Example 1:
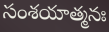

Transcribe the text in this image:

సంశయాత్మనః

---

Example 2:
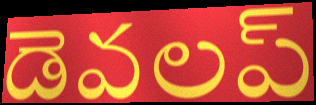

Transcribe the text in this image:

డెవలప్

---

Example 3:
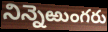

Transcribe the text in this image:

నిన్నెఱుంగరు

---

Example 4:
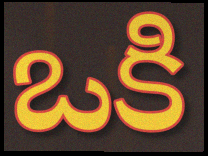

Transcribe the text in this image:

ఒకి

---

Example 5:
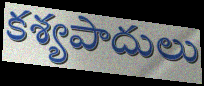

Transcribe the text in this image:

కశ్యపాదులు